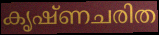
കൃഷ്ണചരിത